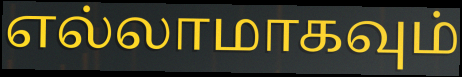
எல்லாமாகவும்